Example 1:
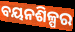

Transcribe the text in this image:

ବୟନଶିଳ୍ପର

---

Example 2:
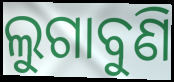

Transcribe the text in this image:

ଲୁଗାବୁଣି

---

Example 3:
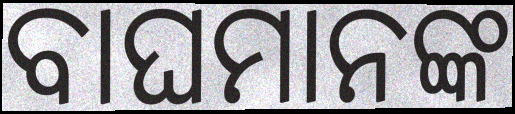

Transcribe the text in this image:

ବାଘମାନଙ୍କ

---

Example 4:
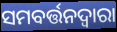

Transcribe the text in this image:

ସମବର୍ତ୍ତନଦ୍ୱାରା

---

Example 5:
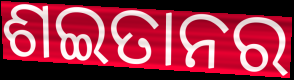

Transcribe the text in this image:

ଶଇତାନର